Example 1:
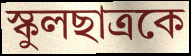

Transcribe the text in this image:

স্কুলছাত্রকে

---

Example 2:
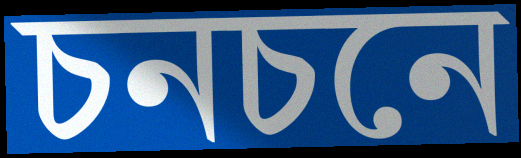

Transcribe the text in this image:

চনচনে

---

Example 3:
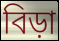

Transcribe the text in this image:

বিড়া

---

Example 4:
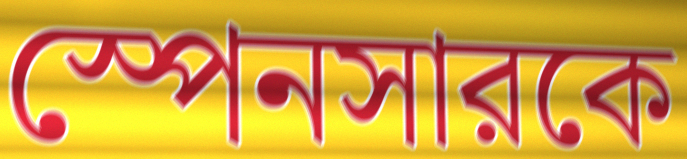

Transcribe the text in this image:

স্পেনসারকে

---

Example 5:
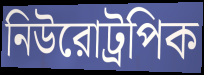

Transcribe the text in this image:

নিউরোট্রপিক